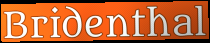
Bridenthal